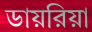
ডায়রিয়া